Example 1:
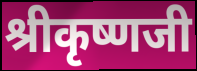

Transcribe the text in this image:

श्रीकृष्णजी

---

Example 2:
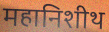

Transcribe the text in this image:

महानिशीथ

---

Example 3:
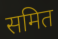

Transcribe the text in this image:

समित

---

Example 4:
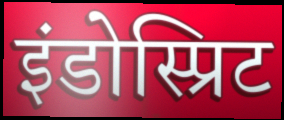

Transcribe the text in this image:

इंडोस्प्रिट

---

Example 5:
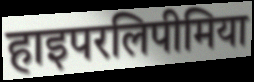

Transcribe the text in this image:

हाइपरलिपीमिया